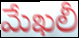
మేఖలీ